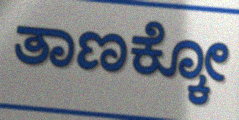
ತಾಣಕ್ಕೋ